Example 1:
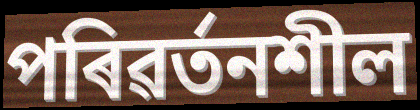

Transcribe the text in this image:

পৰিৱৰ্তনশীল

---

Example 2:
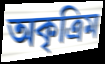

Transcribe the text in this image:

অকৃত্ৰিম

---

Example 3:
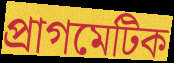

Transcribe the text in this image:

প্ৰাগমেটিক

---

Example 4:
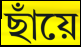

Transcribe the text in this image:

ছাঁয়ে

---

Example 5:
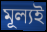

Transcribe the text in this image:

মূল্যই